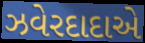
ઝવેરદાદાએ